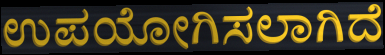
ಉಪಯೋಗಿಸಲಾಗಿದೆ